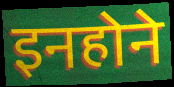
इनहोने